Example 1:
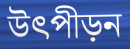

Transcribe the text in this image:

উৎপীড়ন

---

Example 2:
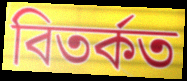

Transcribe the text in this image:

বিতৰ্কত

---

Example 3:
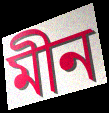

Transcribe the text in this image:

মীন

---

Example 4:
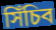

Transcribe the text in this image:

সিঁচিব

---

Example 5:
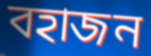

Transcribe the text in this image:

বহাজন